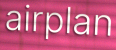
airplan